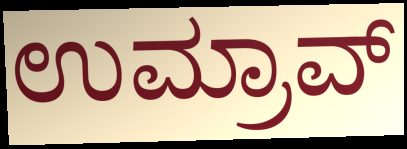
ಉಮ್ರಾವ್